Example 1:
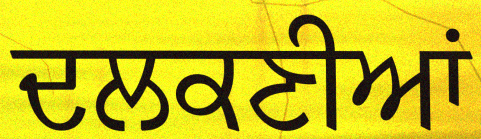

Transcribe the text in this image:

ਦਲਕਣੀਆਂ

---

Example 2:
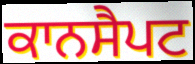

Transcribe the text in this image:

ਕਾਨਸੈਪਟ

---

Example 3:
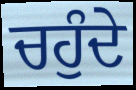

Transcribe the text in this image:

ਚਹੁੰਦੇ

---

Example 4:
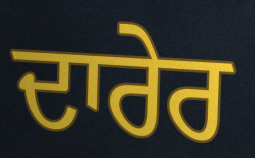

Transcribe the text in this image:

ਦਾਰੇਰ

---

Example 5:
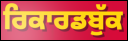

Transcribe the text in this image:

ਰਿਕਾਰਡਬੁੱਕ